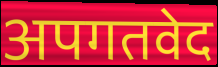
अपगतवेद